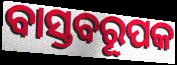
ବାସ୍ତବରୂପକ